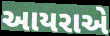
આયરાએ